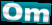
Om